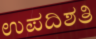
ಉಪದಿಶತಿ